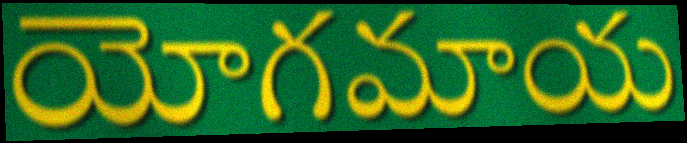
యోగమాయ